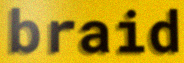
braid